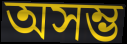
অসম্ভ